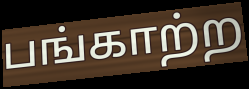
பங்காற்ற